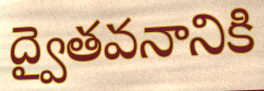
ద్వైతవనానికి